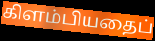
கிளம்பியதைப்